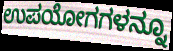
ಉಪಯೋಗಗಳನ್ನೂ